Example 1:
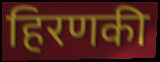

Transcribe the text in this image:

हिरणकी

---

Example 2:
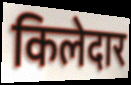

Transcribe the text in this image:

किलेदार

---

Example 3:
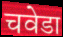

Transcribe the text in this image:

चवेडा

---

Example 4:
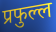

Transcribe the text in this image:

प्रफुल्ल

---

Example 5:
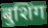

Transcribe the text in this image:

बुशिंग